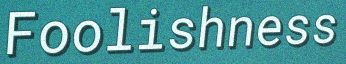
Foolishness